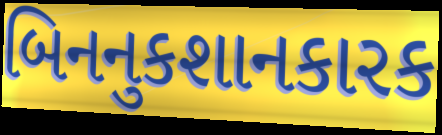
બિનનુકશાનકારક